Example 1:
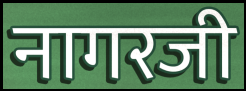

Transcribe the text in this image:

नागरजी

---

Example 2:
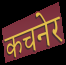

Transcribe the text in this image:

कचनेर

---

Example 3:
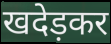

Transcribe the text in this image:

खदेड़कर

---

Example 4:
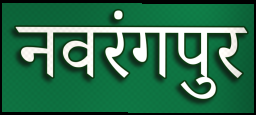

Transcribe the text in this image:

नवरंगपुर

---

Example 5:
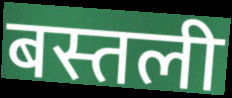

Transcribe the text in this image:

बस्तली